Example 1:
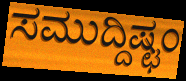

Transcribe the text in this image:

ಸಮುದ್ದಿಷ್ಟಂ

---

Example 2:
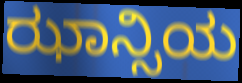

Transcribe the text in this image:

ಝಾನ್ಸಿಯ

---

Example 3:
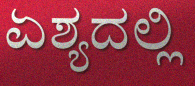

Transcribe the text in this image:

ಏಶ್ಯದಲ್ಲಿ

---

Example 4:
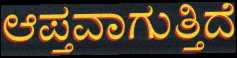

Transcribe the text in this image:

ಆಪ್ತವಾಗುತ್ತಿದೆ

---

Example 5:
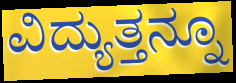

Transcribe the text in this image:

ವಿದ್ಯುತ್ತನ್ನೂ